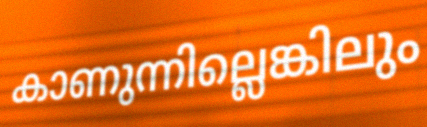
കാണുന്നില്ലെങ്കിലും